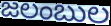
జలంబుల